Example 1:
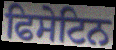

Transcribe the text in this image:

ਫਿਸੇਟਿਨ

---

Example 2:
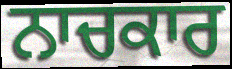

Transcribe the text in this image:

ਨਾਚਕਾਰ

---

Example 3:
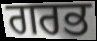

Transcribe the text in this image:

ਗਰਭ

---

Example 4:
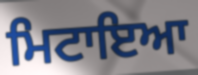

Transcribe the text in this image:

ਮਿਟਾਇਆ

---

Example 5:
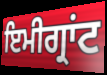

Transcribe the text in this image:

ਇਮੀਗ੍ਰਾਂਟ